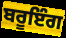
ਬਰੂਇੰਗ